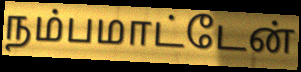
நம்பமாட்டேன்